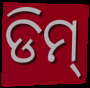
ଡିମ୍